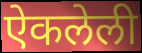
ऐकलेली